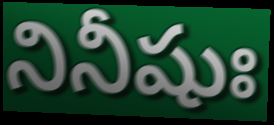
నినీషుః